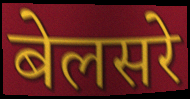
बेलसरे